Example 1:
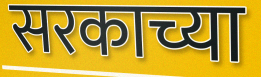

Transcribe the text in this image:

सरकाच्या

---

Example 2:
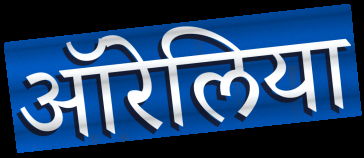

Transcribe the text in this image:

ऑरेलिया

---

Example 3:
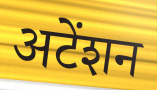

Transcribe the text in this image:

अटेंशन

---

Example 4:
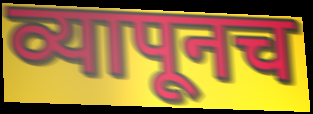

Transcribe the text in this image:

व्यापूनच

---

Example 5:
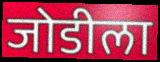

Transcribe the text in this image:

जोडीला